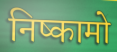
निष्कामो